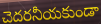
చెదరనీయకుండా